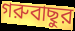
গরুবাছুর